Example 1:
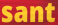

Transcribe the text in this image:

sant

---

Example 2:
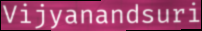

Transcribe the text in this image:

Vijyanandsuri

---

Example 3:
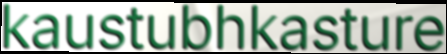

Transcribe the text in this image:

kaustubhkasture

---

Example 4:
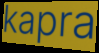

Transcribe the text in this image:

kapra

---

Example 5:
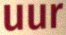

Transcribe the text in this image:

uur